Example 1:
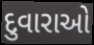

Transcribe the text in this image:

દુવારાઓ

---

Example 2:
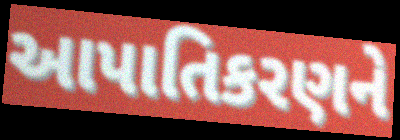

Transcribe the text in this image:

આપાતિકરણને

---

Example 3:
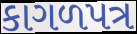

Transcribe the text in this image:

કાગળપત્ર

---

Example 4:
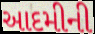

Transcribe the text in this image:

આદમીની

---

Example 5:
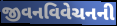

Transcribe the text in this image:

જીવનવિવેચનની